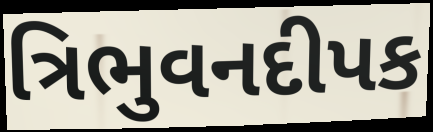
ત્રિભુવનદીપક